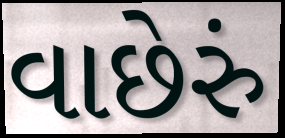
વાછેરું